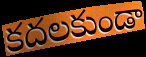
కదలకుండా